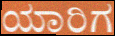
ಯಾರಿಗ